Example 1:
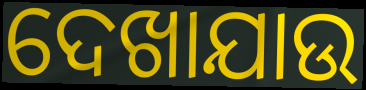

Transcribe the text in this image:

ଦେଖାଯାଉ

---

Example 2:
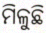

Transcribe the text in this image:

ମିଳୁଛି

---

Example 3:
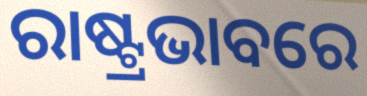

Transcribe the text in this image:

ରାଷ୍ଟ୍ରଭାବରେ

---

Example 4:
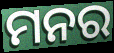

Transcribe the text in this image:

ମନର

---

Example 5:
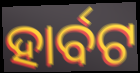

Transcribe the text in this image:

ହାର୍ବଟ